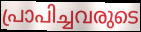
പ്രാപിച്ചവരുടെ